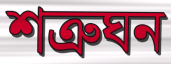
শত্ৰুঘন